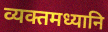
व्यक्तमध्यानि